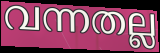
വന്നതല്ല